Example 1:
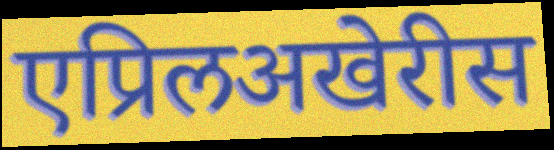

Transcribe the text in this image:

एप्रिलअखेरीस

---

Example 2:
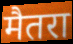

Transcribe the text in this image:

मैतरा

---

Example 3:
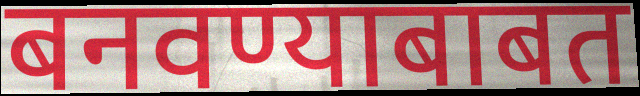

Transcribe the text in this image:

बनवण्याबाबत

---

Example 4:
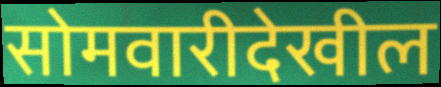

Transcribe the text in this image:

सोमवारीदेखील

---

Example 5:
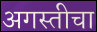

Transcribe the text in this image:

अगस्तीचा